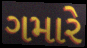
ગમારે